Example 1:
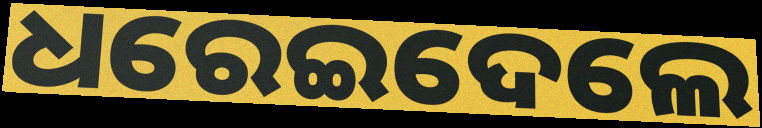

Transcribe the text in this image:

ଧରେଇଦେଲେ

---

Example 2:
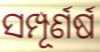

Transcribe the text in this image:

ସମ୍ପୂର୍ଣର୍ଷ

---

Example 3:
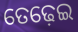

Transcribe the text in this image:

ତେଢ଼େଇ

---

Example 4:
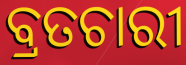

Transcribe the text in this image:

ବ୍ରତଚାରୀ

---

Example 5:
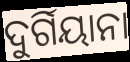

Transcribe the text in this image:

ଦୁର୍ଗିୟାନା